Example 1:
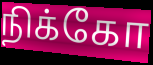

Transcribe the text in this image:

நிக்கோ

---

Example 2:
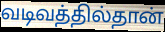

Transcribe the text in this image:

வடிவத்தில்தான்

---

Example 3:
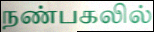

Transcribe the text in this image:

நண்பகலில்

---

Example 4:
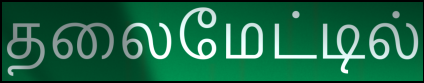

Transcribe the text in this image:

தலைமேட்டில்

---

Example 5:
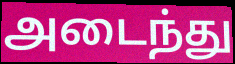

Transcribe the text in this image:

அடைந்து